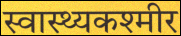
स्वास्थ्यकश्‍मीर